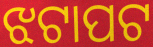
ଝଟାପଟ